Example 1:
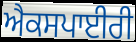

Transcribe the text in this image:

ਐਕਸਪਾਈਰੀ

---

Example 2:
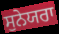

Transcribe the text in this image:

ਸੁਨੇਯਰਾ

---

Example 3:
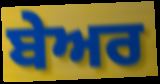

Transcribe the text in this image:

ਬੇਅਰ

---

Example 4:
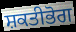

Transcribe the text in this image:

ਸ਼ਕਤੀਭੋਗ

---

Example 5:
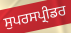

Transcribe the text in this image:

ਸੁਪਰਸਪ੍ਰੀਡਰ